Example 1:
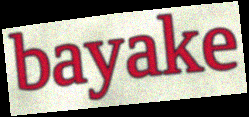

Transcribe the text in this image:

bayake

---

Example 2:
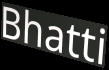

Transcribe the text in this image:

Bhatti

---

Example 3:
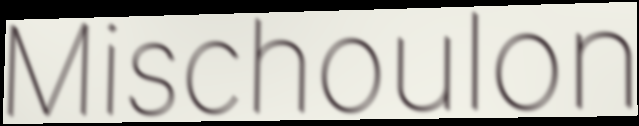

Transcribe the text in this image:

Mischoulon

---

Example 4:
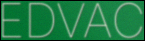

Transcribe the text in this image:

EDVAC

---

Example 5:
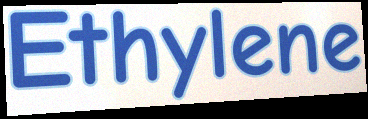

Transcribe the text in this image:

Ethylene